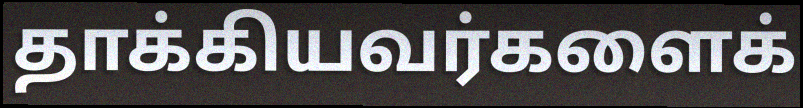
தாக்கியவர்களைக்